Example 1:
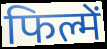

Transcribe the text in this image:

फिल्‍में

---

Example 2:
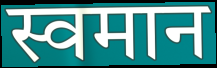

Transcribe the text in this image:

स्वमान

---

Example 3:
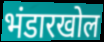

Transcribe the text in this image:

भंडारखोल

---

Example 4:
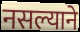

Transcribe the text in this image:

नसल्याने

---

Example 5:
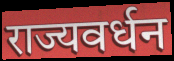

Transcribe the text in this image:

राज्‍यवर्धन